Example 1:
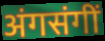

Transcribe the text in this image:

अंगसंगीं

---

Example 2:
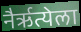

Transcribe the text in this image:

नैर्ऋत्येला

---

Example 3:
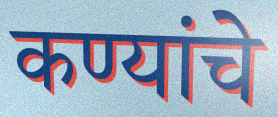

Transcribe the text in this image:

कण्यांचे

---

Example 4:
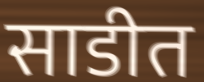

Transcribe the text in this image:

साडीत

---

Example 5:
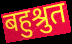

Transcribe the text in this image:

बहुश्रुत